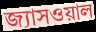
জ্যাসওয়াল